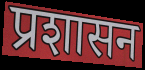
प्रशासन